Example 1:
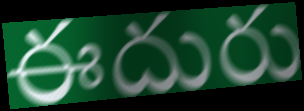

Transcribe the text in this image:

ఈదురు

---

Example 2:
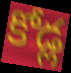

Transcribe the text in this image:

కోడ్ల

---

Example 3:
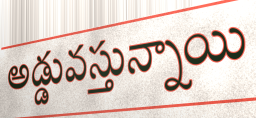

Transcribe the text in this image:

అడ్డువస్తున్నాయి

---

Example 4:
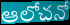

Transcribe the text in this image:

ఆలోచనో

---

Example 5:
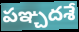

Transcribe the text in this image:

పఞ్చదశే